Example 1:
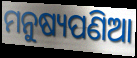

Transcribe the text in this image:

ମନୁଷ୍ୟପଣିଆ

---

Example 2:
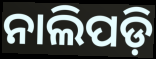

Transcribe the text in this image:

ନାଲିପଡ଼ି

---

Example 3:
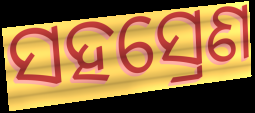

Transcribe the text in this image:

ସହସ୍ରେଣ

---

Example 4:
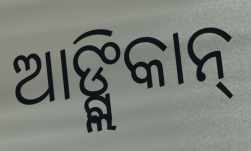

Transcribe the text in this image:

ଆଙ୍ଗ୍ଲିକାନ୍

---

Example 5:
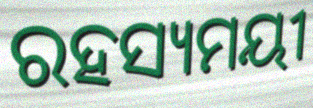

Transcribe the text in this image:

ରହସ୍ୟମୟୀ